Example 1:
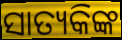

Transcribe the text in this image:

ସାତ୍ୟକିଙ୍କ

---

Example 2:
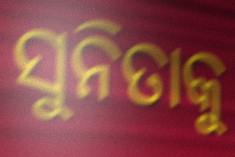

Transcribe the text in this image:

ସୁନିତାକୁ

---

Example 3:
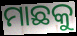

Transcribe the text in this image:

ମାଛକୁ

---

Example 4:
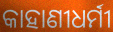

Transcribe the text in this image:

କାହାଣୀଧର୍ମୀ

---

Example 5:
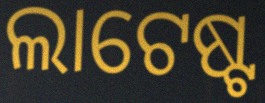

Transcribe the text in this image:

ଲାଟେଷ୍ଟ